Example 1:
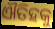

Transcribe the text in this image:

ଐତିହକୁ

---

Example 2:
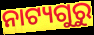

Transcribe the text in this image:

ନାଟ୍ୟଗୁରୁ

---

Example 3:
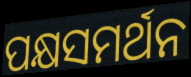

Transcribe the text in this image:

ପକ୍ଷସମର୍ଥନ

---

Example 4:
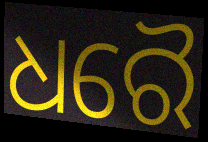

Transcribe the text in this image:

ଧରୈ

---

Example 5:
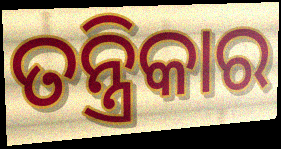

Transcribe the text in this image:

ତନ୍ତ୍ରିକାର